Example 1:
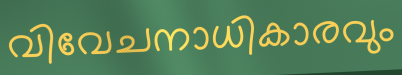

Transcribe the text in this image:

വിവേചനാധികാരവും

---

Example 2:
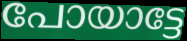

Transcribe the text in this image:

പോയാട്ടേ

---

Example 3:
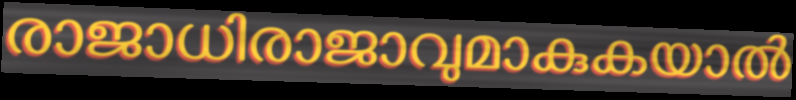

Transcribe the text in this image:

രാജാധിരാജാവുമാകുകയാൽ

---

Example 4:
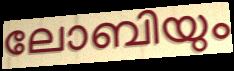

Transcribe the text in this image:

ലോബിയും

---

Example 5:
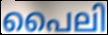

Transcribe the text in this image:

പൈലി